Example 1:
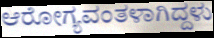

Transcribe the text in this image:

ಆರೋಗ್ಯವಂತಳಾಗಿದ್ದಳು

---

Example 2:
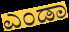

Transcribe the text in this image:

ಎಂಡಾ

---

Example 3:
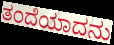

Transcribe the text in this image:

ತಂದೆಯಾದನು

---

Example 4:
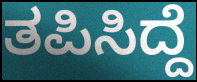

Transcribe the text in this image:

ತಪಿಸಿದ್ದೆ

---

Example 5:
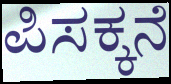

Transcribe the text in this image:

ಪಿಸಕ್ಕನೆ